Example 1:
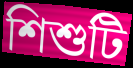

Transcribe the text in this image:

শিশুটি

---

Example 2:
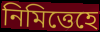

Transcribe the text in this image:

নিমিত্তেহে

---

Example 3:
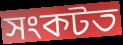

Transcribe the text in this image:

সংকটত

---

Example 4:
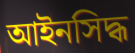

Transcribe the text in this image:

আইনসিদ্ধ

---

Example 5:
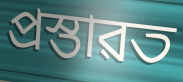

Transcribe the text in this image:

প্ৰস্তাৱত